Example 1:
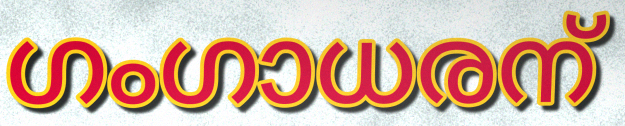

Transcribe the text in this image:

ഗംഗാധരന്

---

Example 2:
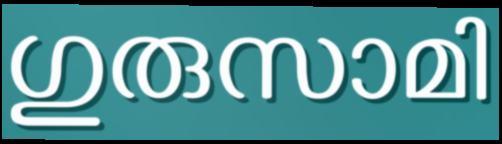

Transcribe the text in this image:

ഗുരുസാമി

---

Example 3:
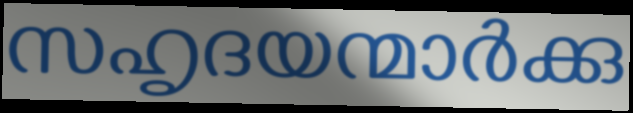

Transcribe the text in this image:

സഹൃദയന്മാർക്കു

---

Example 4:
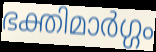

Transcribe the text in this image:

ഭക്തിമാർഗ്ഗം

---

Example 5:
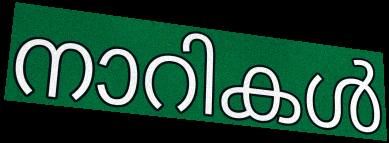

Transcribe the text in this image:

നാറികൾ